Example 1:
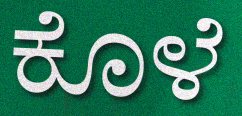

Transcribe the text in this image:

ಕೊಳೆ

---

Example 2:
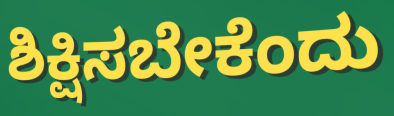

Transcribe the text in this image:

ಶಿಕ್ಷಿಸಬೇಕೆಂದು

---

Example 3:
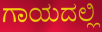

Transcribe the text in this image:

ಗಾಯದಲ್ಲಿ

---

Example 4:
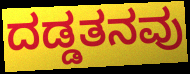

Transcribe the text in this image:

ದಡ್ಡತನವು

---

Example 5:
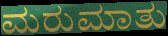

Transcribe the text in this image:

ಮರುಮಾತು